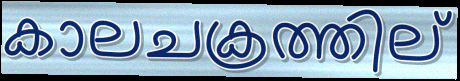
കാലചക്രത്തില്